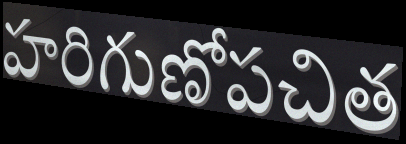
హరిగుణోపచిత